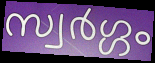
സ്വർഗ്ഗം